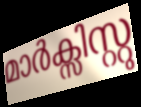
മാർക്സിസ്റ്റു